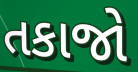
તકાજો